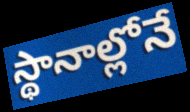
స్థానాల్లోనే